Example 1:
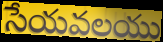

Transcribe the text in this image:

సేయవలయు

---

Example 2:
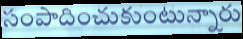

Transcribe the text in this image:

సంపాదించుకుంటున్నారు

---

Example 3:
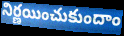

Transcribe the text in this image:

నిర్ణయించుకుందాం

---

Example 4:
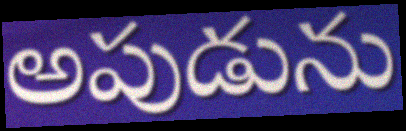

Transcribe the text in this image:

అపుడును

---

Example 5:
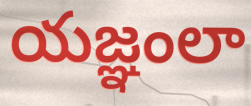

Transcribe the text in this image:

యజ్ఞంలా